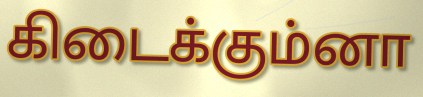
கிடைக்கும்னா